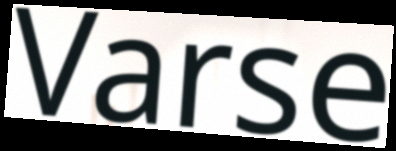
Varse